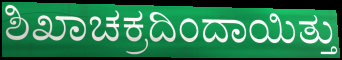
ಶಿಖಾಚಕ್ರದಿಂದಾಯಿತ್ತು